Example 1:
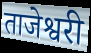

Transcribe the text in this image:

ताजेश्वरी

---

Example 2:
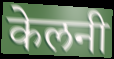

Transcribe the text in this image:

केलनी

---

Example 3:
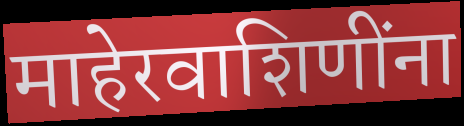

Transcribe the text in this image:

माहेरवाशिणींना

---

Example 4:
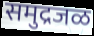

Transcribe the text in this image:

समुद्रजळ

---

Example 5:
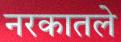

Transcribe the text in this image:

नरकातले